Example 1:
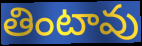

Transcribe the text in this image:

తింటావు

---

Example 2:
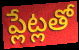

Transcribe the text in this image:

ప్లేట్లతో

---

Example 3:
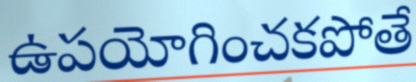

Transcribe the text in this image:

ఉపయోగించకపోతే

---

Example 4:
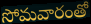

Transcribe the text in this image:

సోమవారంతో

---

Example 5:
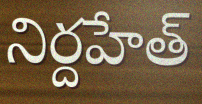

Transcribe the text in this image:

నిర్దహేత్